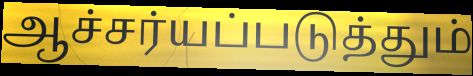
ஆச்சர்யப்படுத்தும்